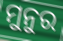
ମୁନୁର